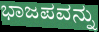
ಭಾಜಪವನ್ನು